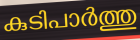
കുടിപാർത്തു